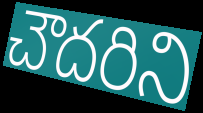
చౌదరిని